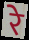
रे